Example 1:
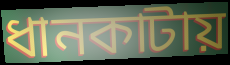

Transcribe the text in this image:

ধানকাটায়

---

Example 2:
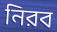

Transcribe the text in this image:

নিরব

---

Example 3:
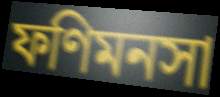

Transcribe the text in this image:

ফণিমনসা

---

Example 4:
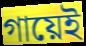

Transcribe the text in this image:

গায়েই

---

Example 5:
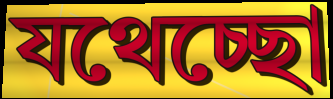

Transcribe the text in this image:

যথেচ্ছো